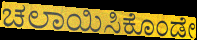
ಚಲಾಯಿಸಿಕೊಂಡೇ